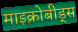
माइक्रोबीड्स